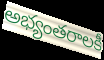
అభ్యంతరాలకీ